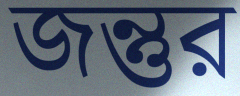
জন্তুর